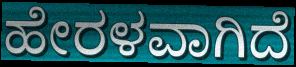
ಹೇರಳವಾಗಿದೆ